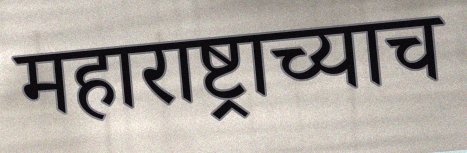
महाराष्ट्राच्याच